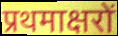
प्रथमाक्षरों